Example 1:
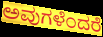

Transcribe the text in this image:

ಅವುಗಳೆಂದರೆ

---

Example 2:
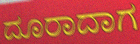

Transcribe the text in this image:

ದೂರಾದಾಗ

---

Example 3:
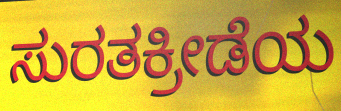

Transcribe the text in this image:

ಸುರತಕ್ರೀಡೆಯ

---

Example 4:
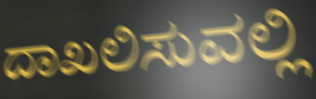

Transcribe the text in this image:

ದಾಖಲಿಸುವಲ್ಲಿ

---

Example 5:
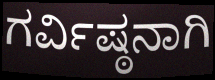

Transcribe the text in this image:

ಗರ್ವಿಷ್ಠನಾಗಿ